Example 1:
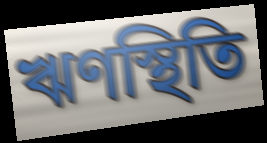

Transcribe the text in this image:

ঋণস্থিতি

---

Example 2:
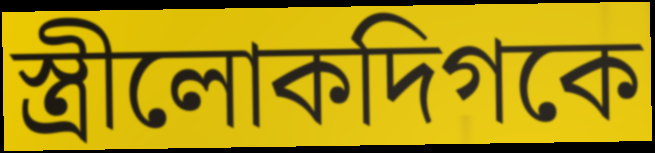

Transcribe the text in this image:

স্ত্রীলোকদিগকে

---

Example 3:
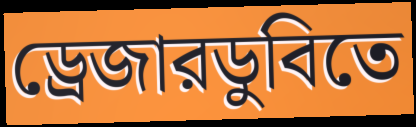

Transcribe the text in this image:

ড্রেজারডুবিতে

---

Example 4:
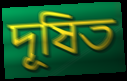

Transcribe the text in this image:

দূষিত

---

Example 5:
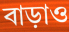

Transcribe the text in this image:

বাড়াও